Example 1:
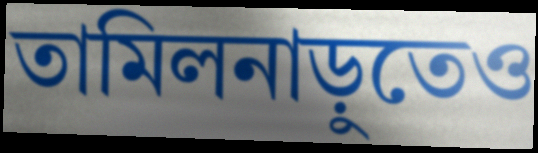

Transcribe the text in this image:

তামিলনাড়ুতেও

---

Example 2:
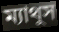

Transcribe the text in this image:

ম্যাথুস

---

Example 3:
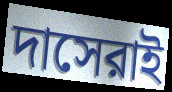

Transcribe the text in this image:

দাসেরাই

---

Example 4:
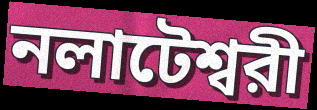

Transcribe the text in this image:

নলাটেশ্বরী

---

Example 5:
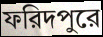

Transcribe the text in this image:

ফরিদপুরে